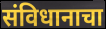
संविधानाचा